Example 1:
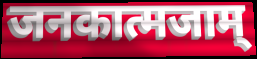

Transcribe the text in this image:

जनकात्मजाम्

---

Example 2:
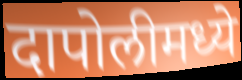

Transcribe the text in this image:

दापोलीमध्ये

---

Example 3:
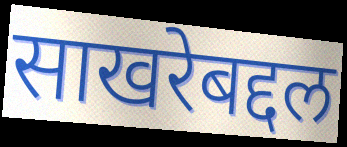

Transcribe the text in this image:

साखरेबद्दल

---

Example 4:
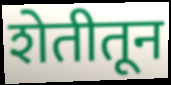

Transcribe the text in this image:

शेतीतून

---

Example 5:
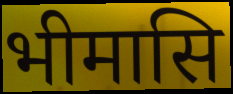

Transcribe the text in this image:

भीमासि